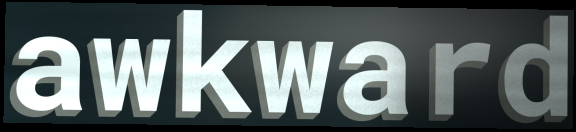
awkward